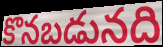
కొనబడునది